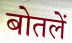
बोतलें